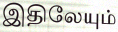
இதிலேயும்